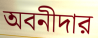
অবনীদার